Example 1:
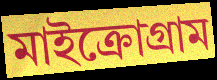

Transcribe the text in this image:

মাইক্রোগ্রাম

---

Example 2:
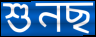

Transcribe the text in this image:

শুনছ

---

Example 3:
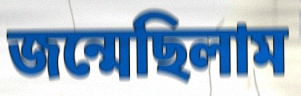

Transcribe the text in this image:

জন্মেছিলাম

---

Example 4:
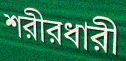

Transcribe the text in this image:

শরীরধারী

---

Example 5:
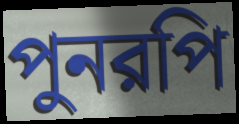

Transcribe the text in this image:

পুনরপি